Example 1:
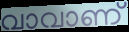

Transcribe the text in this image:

വാവാണ്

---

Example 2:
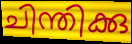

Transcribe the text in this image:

ചിന്തിക്കു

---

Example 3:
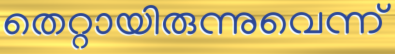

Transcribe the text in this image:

തെറ്റായിരുന്നുവെന്ന്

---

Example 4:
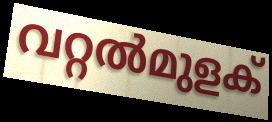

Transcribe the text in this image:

വറ്റൽമുളക്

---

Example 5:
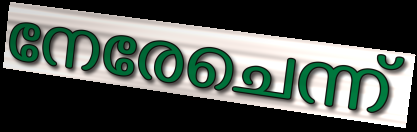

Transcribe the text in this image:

നേരേചെന്ന്